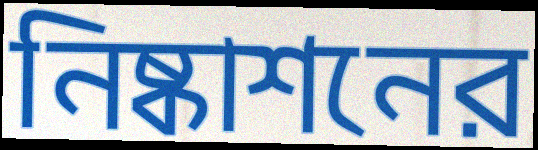
নিষ্কাশনের